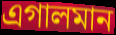
এগালমান